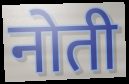
नोती